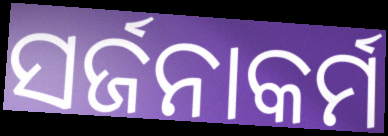
ସର୍ଜନାକର୍ମ